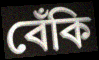
বেঁকি